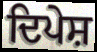
ਦਿਪੇਸ਼